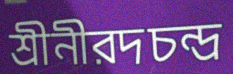
শ্রীনীরদচন্দ্র